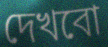
দেখবো